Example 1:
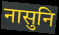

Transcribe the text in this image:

नासुनि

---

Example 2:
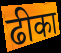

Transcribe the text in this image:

ढीका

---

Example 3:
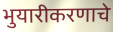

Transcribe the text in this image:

भुयारीकरणाचे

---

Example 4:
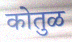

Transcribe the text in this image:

कोतुळ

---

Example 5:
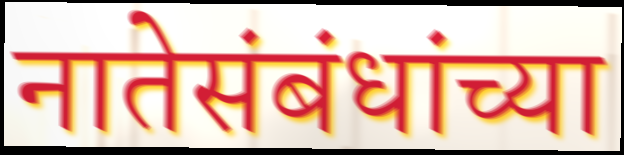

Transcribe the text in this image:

नातेसंबंधांच्या